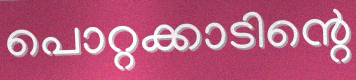
പൊറ്റക്കാടിന്റെ